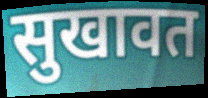
सुखावत